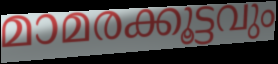
മാമരക്കൂട്ടവും